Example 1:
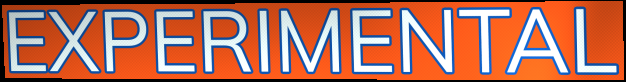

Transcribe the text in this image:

EXPERIMENTAL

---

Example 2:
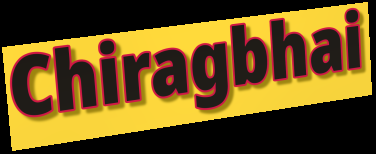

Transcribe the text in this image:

Chiragbhai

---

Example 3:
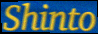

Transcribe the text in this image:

Shinto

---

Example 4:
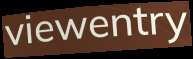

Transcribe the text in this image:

viewentry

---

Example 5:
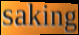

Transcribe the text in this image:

saking